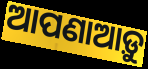
ଆପଣାଆଡ଼ୁ